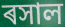
ৰসাল